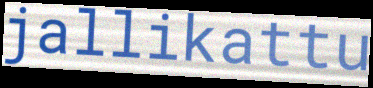
jallikattu